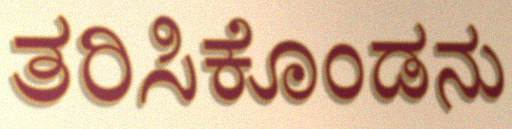
ತರಿಸಿಕೊಂಡನು